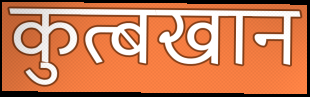
कुत्बखान